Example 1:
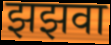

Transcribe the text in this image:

झझवा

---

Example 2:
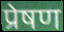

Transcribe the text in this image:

प्रेषण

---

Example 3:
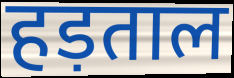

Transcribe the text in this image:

हड़ताल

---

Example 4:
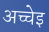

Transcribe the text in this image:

अच्चेइ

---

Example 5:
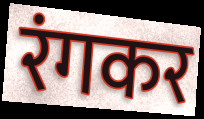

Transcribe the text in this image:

रंगकर